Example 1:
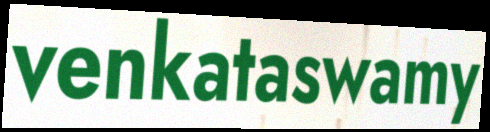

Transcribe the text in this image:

venkataswamy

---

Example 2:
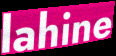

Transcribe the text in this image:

lahine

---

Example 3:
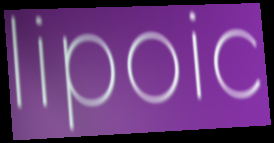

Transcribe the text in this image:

lipoic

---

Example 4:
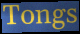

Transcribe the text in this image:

Tongs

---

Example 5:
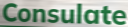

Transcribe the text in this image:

Consulate